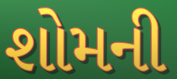
શોમની